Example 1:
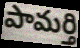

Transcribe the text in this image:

పామర్తి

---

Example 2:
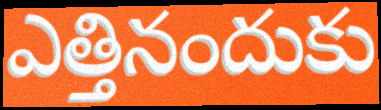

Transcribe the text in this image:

ఎత్తినందుకు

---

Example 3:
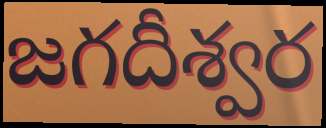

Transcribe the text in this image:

జగదీశ్వర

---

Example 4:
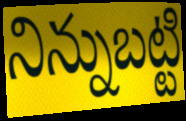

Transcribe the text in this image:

నిన్నుబట్టి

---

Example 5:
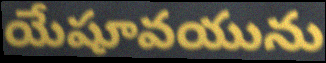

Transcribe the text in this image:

యేషూవయును